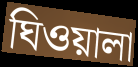
ঘিওয়ালা